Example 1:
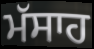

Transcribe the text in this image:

ਮੱਸਾਹ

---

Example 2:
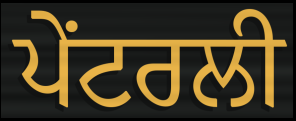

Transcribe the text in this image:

ਪੇਂਟਰਲੀ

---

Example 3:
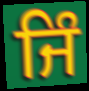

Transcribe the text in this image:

ਜਿੰ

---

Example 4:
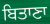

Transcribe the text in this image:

ਬਿਤਾਣਾ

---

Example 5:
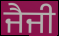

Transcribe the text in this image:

ਜੈਜੀ